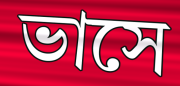
ভাসে